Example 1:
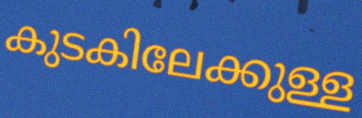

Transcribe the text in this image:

കുടകിലേക്കുള്ള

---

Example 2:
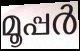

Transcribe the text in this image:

മൂപ്പർ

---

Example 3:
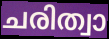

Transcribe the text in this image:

ചരിത്വാ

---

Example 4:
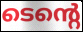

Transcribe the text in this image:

ടെന്റെ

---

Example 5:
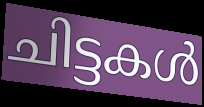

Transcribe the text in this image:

ചിട്ടകൾ